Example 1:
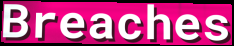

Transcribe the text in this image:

Breaches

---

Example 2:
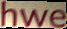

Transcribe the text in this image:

hwe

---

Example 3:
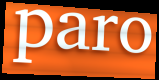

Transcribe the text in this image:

paro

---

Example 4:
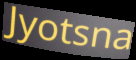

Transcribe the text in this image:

Jyotsna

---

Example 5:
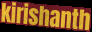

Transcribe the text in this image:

kirishanth